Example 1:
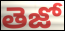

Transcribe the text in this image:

తెజో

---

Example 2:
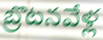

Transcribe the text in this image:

బ్రొటనవేళ్ల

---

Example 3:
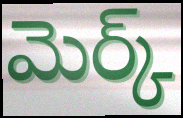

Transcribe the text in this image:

మెర్క్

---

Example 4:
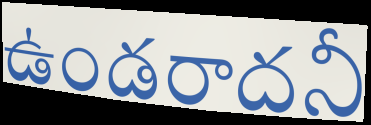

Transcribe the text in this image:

ఉండరాదనీ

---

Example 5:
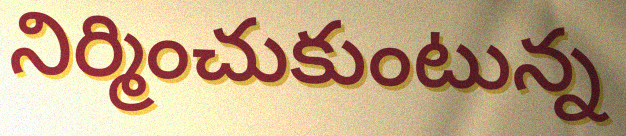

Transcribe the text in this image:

నిర్మించుకుంటున్న